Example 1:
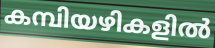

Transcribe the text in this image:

കമ്പിയഴികളിൽ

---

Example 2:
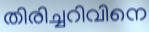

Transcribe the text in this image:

തിരിച്ചറിവിനെ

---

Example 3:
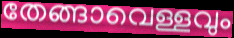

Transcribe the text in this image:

തേങ്ങാവെള്ളവും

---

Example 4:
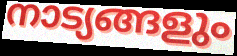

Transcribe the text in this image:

നാട്യങ്ങളും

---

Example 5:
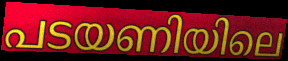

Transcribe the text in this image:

പടയണിയിലെ